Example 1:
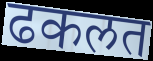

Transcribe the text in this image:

ढकलत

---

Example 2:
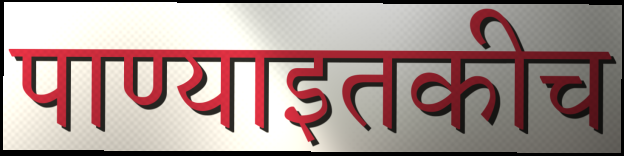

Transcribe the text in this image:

पाण्याइतकीच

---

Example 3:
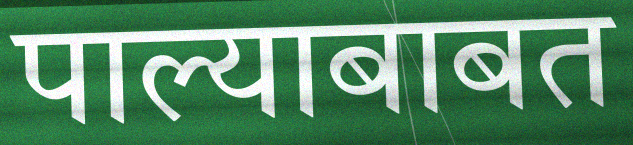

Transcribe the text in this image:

पाल्याबाबत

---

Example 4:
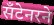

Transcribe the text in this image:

सँटेनरने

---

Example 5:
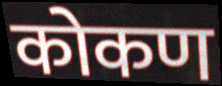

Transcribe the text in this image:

कोकण